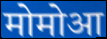
मोमोआ